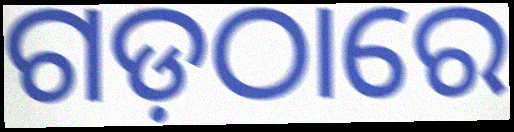
ଗଡ଼ଠାରେ